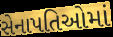
સેનાપતિઓમાં